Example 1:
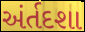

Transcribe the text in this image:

અંર્તદશા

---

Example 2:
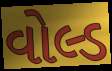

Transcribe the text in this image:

વોલ્ડ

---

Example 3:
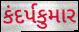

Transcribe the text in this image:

કંદર્પકુમાર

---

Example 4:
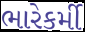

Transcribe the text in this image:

ભારેકર્મી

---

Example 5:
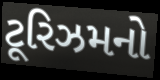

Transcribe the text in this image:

ટૂરિઝમનો